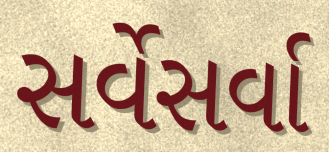
સર્વેસર્વા